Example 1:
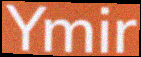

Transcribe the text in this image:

Ymir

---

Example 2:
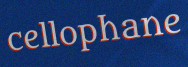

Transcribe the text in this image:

cellophane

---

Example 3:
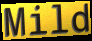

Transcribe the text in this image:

Mild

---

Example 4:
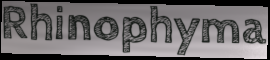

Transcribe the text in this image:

Rhinophyma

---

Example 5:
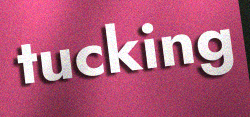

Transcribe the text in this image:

tucking